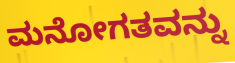
ಮನೋಗತವನ್ನು